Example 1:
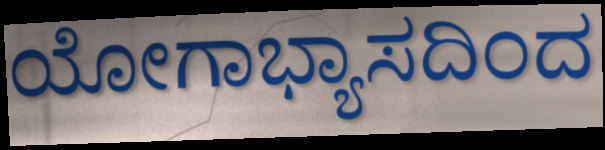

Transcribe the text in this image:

ಯೋಗಾಭ್ಯಾಸದಿಂದ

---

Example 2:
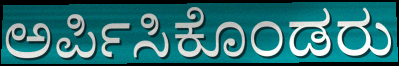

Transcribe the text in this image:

ಅರ್ಪಿಸಿಕೊಂಡರು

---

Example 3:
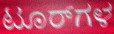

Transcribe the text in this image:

ಟೂರ್‌ಗಳ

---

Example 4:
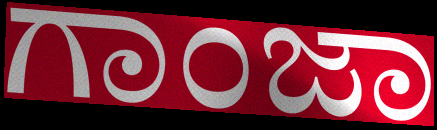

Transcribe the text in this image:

ಗಾಂಜಾ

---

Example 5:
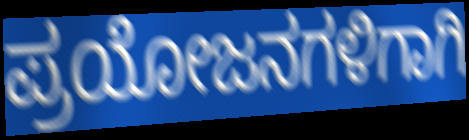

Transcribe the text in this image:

ಪ್ರಯೋಜನಗಳಿಗಾಗಿ